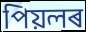
পিয়লৰ